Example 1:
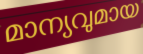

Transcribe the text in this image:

മാന്യവുമായ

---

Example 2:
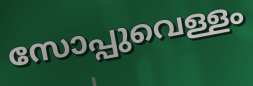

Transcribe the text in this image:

സോപ്പുവെള്ളം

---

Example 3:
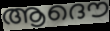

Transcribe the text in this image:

ആദൌ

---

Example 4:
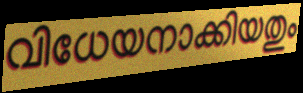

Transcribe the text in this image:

വിധേയനാക്കിയതും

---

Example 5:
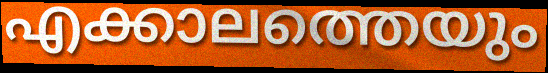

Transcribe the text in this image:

എക്കാലത്തെയും